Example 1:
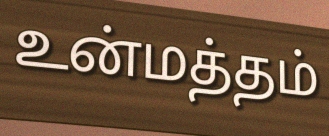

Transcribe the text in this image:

உன்மத்தம்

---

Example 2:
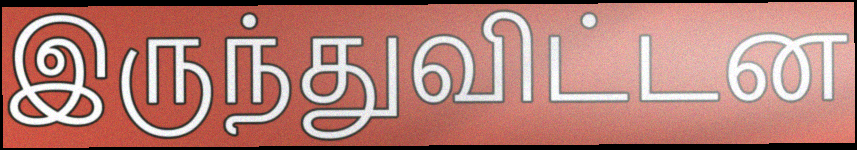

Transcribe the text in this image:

இருந்துவிட்டன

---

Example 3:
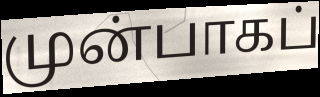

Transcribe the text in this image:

முன்பாகப்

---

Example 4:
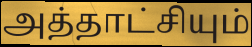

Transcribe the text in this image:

அத்தாட்சியும்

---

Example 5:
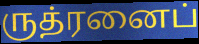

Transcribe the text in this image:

ருத்ரனைப்